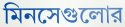
মিনসেগুলোর